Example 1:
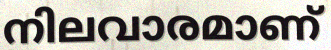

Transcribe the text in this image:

നിലവാരമാണ്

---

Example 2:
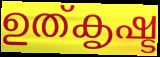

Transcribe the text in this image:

ഉത്കൃഷ്ട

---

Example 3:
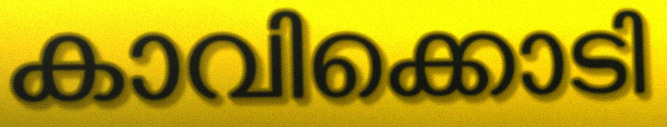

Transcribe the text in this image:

കാവിക്കൊടി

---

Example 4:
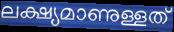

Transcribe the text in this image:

ലക്ഷ്യമാണുള്ളത്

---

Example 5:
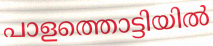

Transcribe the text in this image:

പാളത്തൊട്ടിയിൽ